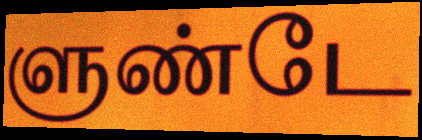
ளுண்டே